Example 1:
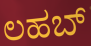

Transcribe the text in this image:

ಲಹಬ್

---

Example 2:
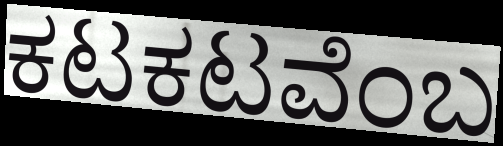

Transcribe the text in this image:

ಕಟಕಟವೆಂಬ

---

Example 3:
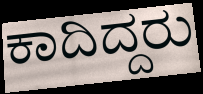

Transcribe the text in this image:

ಕಾದಿದ್ದರು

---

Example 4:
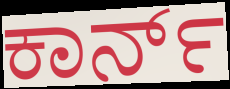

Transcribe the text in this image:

ಕಾರ್ನ್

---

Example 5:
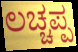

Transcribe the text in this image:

ಲಚ್ಚಪ್ಪ